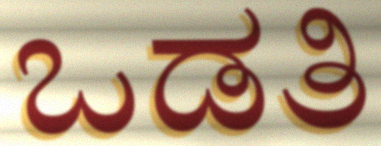
ಒಡತಿ